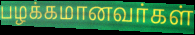
பழக்கமானவர்கள்